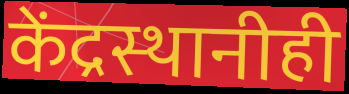
केंद्रस्थानीही